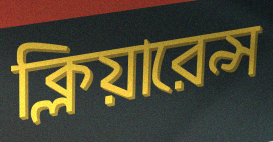
ক্লিয়ারেন্স